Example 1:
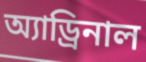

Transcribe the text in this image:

অ্যাড্রিনাল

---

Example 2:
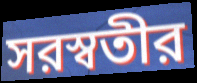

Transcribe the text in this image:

সরস্বতীর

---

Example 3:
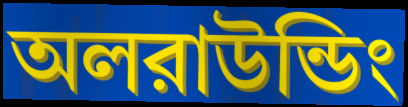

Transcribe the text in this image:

অলরাউন্ডিং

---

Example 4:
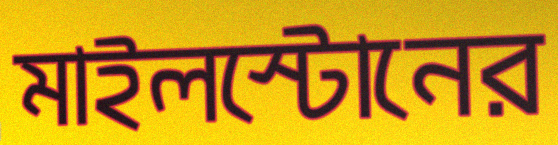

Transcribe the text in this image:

মাইলস্টোনের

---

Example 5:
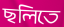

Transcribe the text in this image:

ছলিতে